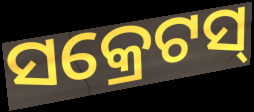
ସକ୍ରେଟସ୍